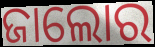
ଜାଲୋର